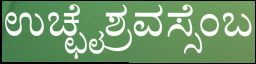
ಉಚ್ಛೈಶ್ರವಸ್ಸೆಂಬ